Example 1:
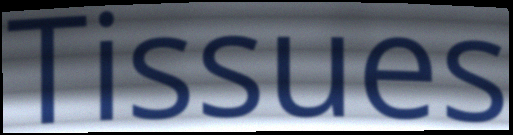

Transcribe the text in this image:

Tissues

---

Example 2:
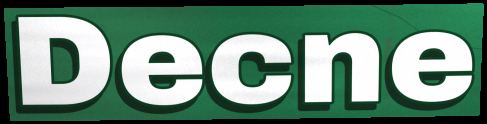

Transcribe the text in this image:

Decne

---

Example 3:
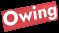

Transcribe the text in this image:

Owing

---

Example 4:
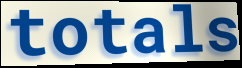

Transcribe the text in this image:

totals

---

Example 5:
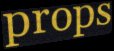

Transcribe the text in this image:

props